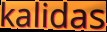
kalidas